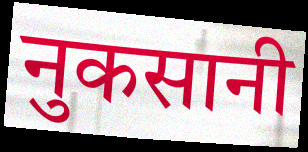
नुकसानी